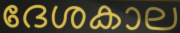
ദേശകാല